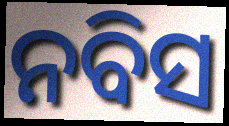
ନବିସ